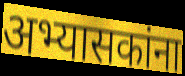
अभ्यासकांना